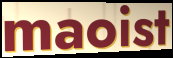
maoist